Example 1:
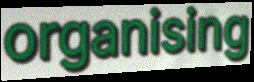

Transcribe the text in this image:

organising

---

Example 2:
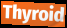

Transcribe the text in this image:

Thyroid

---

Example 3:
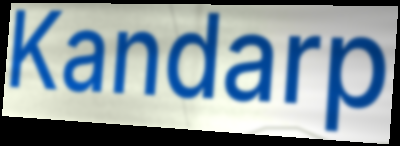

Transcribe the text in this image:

Kandarp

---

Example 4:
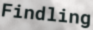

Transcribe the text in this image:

Findling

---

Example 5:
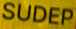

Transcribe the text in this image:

SUDEP